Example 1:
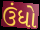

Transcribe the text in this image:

ઉંધો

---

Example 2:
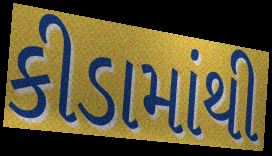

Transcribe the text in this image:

કીડામાંથી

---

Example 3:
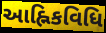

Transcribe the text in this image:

આહ્નિકવિધિ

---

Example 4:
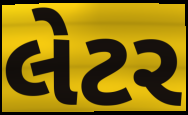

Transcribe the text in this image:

લેટર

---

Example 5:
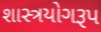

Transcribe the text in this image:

શાસ્ત્રયોગરૂપ